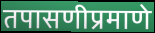
तपासणीप्रमाणे